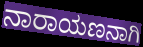
ನಾರಾಯಣನಾಗಿ